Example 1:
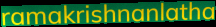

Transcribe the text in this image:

ramakrishnanlatha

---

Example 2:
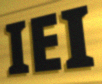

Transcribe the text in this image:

IEI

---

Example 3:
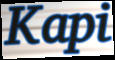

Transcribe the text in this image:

Kapi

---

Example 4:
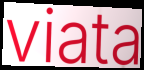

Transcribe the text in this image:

viata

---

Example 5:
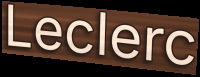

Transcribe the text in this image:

Leclerc